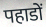
पहाडों